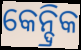
କେନ୍ଦ୍ରିକ